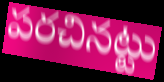
పరచినట్టు